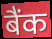
बैंक